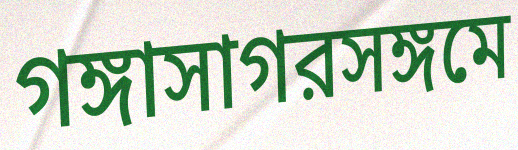
গঙ্গাসাগরসঙ্গমে